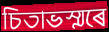
চিতাভস্মৰে